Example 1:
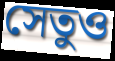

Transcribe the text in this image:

সেতুও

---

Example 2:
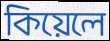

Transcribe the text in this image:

কিয়েলে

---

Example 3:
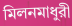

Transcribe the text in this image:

মিলনমাধুরী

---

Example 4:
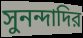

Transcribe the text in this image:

সুনন্দাদির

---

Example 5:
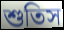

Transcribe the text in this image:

শুতিস